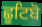
ਛੂਟਿਬੋ